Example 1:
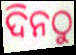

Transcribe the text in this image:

ଦିନଠୁ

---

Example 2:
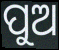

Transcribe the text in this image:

ପୁଅ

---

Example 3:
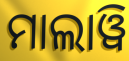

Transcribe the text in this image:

ମାଲାୱି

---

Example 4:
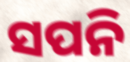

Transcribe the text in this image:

ସପନି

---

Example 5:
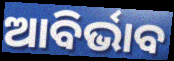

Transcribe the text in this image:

ଆବିର୍ଭାବ